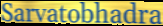
Sarvatobhadra